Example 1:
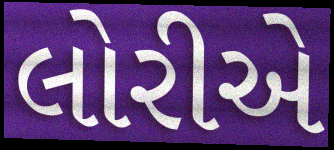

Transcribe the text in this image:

લોરીએ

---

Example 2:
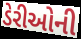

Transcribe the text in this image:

ડેરીઓની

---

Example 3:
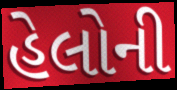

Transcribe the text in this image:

હેલોની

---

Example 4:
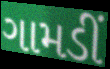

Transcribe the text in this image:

ગામડીં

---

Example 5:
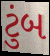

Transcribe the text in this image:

ટુંબ